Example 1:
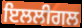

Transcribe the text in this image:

ਇਲਲੀਗਲ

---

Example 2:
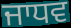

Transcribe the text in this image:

ਜਾਧਵ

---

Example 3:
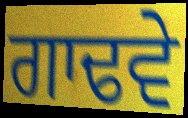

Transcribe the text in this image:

ਗਾਢਵੇ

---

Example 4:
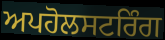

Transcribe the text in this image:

ਅਪਹੋਲਸਟਰਿੰਗ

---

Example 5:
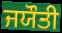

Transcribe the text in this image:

ਜਯੌਤੀ